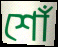
শোঁ